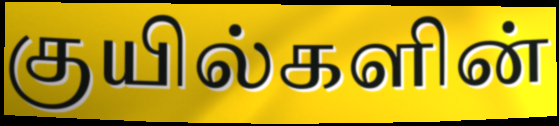
குயில்களின்